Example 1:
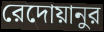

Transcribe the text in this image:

রেদোয়ানুর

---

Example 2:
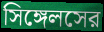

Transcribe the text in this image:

সিঙ্গেলসের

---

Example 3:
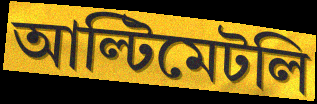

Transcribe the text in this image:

আল্টিমেটলি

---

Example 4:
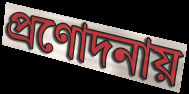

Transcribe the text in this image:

প্রণোদনায়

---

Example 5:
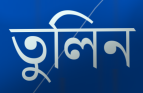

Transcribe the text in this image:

তুলিন